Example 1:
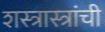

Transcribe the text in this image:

शस्त्रास्त्रांची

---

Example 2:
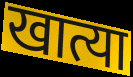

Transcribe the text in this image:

खात्या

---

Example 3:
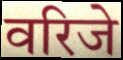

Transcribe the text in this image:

वरिजे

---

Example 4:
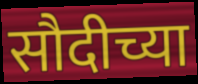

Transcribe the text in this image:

सौदीच्या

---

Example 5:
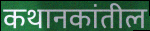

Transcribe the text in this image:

कथानकांतील